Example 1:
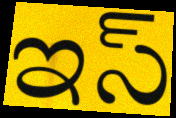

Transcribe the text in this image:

ఇస్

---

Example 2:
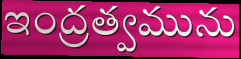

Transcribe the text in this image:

ఇంద్రత్వమును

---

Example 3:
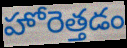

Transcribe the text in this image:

హోరెత్తడం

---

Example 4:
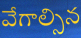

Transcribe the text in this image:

వేగాల్సిన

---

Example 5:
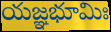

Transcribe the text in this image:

యజ్ఞభూమిః